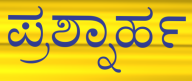
ಪ್ರಶ್ನಾರ್ಹ